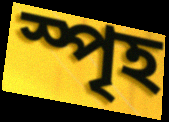
স্পৃহ